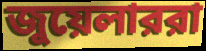
জুয়েলাররা